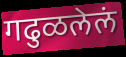
गढुळलेलं